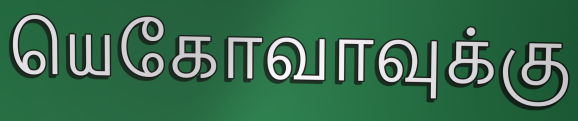
யெகோவாவுக்கு